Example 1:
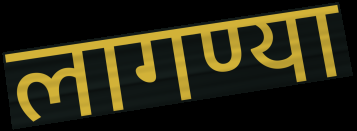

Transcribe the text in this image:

लागण्या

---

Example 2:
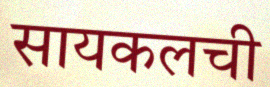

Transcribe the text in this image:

सायकलची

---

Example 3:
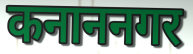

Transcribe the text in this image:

कनाननगर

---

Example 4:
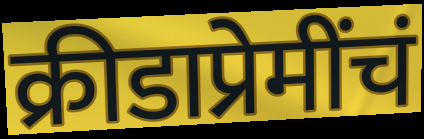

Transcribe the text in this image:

क्रीडाप्रेमींचं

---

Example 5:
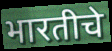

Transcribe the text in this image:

भारतीचे